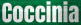
Coccinia